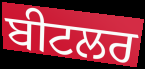
ਬੀਟਲਰ